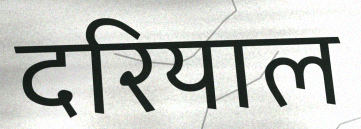
दरियाल